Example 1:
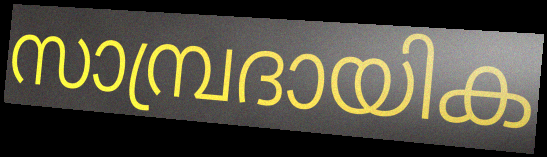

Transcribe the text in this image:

സാമ്പ്രദായിക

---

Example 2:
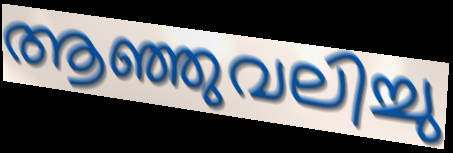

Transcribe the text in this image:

ആഞ്ഞുവലിച്ചു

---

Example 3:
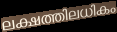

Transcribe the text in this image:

ലക്ഷത്തിലധികം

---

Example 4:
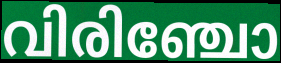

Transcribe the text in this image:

വിരിഞ്ചോ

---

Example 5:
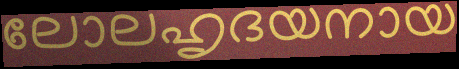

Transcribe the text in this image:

ലോലഹൃദയനായ